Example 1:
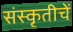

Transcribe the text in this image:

संस्कृतीचें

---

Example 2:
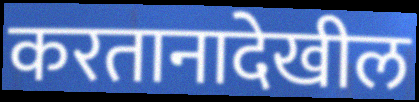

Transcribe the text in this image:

करतानादेखील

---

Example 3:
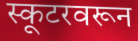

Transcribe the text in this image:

स्कूटरवरून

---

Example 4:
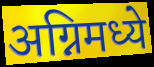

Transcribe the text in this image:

अग्निमध्ये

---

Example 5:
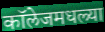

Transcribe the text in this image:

कॉलेजमधल्या